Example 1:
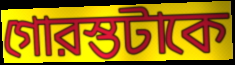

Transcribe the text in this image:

গোরস্তটাকে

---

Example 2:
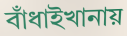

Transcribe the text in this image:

বাঁধাইখানায়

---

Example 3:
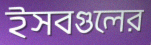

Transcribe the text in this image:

ইসবগুলের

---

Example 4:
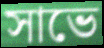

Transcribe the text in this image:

সাভে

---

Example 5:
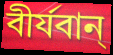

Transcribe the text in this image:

বীর্যবান্